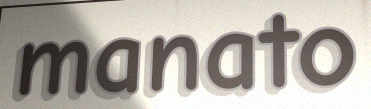
manato